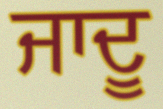
ਜਾਦੂ